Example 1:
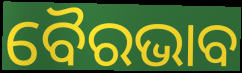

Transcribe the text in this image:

ବୈରଭାବ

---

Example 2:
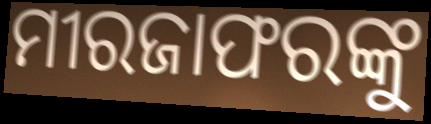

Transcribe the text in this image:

ମୀରଜାଫରଙ୍କୁ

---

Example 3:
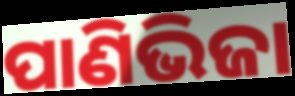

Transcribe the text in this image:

ପାଣିଭିଜା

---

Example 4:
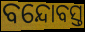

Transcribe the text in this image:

ବନ୍ଦୋବସ୍ତ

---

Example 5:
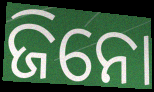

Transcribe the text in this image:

ଜିନୋ